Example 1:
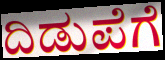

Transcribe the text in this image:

ದಿಡುಪೆಗೆ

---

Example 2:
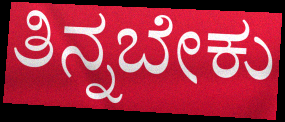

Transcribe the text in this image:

ತಿನ್ನಬೇಕು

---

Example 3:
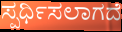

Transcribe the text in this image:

ಸ್ಪರ್ಧಿಸಲಾಗದೆ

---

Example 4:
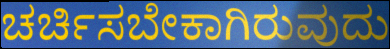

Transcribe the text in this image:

ಚರ್ಚಿಸಬೇಕಾಗಿರುವುದು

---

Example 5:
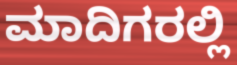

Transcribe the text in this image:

ಮಾದಿಗರಲ್ಲಿ